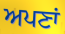
ਅਪਣਾਂ